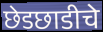
छेडछाडीचे